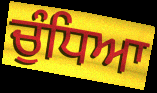
ਚੁੰਧਿਆ